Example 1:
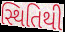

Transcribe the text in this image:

સ્થિતિથી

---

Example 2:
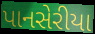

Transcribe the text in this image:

પાનસેરીયા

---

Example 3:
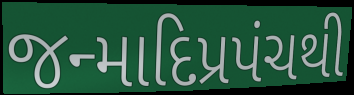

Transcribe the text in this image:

જન્માદિપ્રપંચથી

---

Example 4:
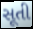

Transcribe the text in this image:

સૂતી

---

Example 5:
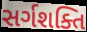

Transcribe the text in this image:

સર્ગશક્તિ